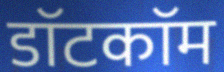
डॉटकॉम